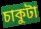
চাকুটা